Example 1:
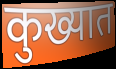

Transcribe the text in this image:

कुख्यात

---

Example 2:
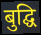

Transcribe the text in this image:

बुद्घि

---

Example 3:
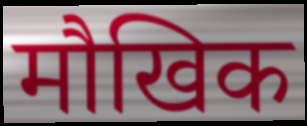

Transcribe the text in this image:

मौखिक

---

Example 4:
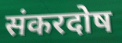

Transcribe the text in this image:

संकरदोष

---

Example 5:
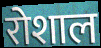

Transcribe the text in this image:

रोशाल